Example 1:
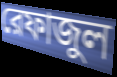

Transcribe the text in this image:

রেফাজুল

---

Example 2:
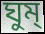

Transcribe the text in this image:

ঘুম্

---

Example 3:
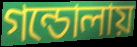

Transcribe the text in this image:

গন্ডোলায়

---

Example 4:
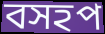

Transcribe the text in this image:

বসহপ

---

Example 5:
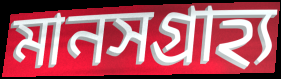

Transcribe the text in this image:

মানসগ্রাহ্য